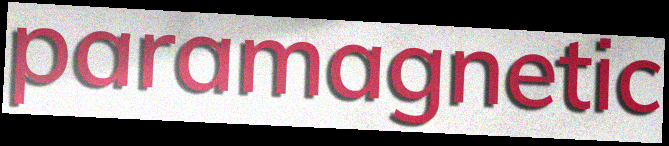
paramagnetic